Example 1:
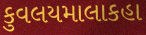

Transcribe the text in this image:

કુવલયમાલાકહા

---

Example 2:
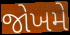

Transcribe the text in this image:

જોખમે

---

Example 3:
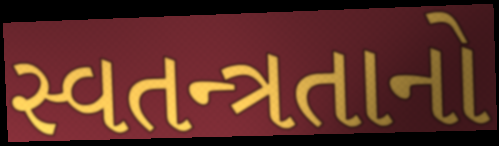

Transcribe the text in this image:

સ્વતન્ત્રતાનો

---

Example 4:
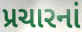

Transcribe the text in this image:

પ્રચારનાં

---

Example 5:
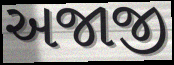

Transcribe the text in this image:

અજાજી